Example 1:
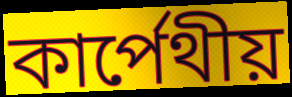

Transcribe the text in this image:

কার্পেথীয়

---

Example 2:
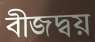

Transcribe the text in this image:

বীজদ্বয়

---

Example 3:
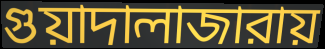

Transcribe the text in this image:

গুয়াদালাজারায়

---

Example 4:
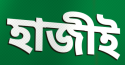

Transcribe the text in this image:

হাজীই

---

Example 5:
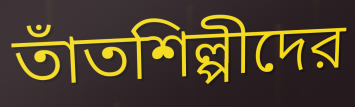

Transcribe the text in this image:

তাঁতশিল্পীদের